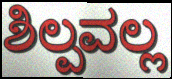
ಶಿಲ್ಪವಲ್ಲ